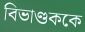
বিভাণ্ডককে